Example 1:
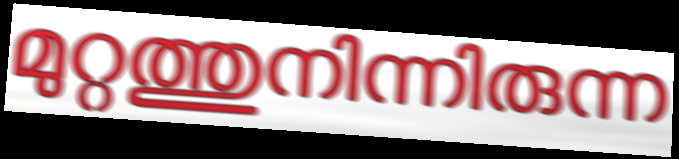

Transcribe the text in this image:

മുറ്റത്തുനിന്നിരുന്ന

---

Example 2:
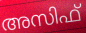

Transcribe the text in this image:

അസിഫ്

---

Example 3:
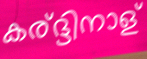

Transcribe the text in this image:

കര്ദ്ദിനാള്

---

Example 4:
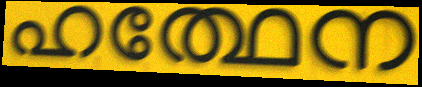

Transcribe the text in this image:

ഹത്ഥേന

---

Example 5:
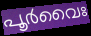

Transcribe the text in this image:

പൂർവൈഃ